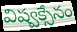
విష్వక్సేనం